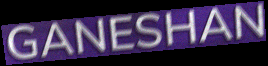
GANESHAN